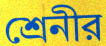
শ্রেনীর